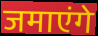
जमाएंगे